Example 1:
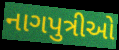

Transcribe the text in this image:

નાગપુત્રીઓ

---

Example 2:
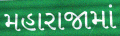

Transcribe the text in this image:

મહારાજામાં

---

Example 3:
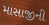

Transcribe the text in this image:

માસાજીની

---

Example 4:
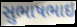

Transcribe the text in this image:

સુભાષભાઇ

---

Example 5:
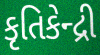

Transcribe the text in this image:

કૃતિકેન્દ્રી